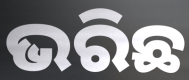
ଭରିଛ